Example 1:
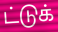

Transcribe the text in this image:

ட்டுக்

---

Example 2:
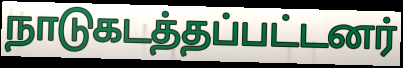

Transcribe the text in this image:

நாடுகடத்தப்பட்டனர்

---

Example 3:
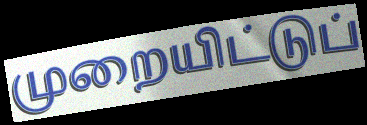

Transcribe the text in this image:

முறையிட்டுப்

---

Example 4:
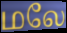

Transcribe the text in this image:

மலே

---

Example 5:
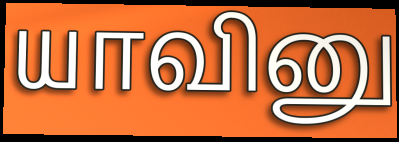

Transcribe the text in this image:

யாவினு